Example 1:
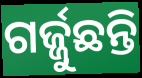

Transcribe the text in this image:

ଗର୍ଜ୍ଜୁଛନ୍ତି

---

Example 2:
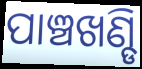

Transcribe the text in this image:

ପାଞ୍ଚଖଣ୍ଡି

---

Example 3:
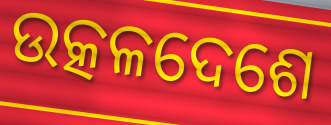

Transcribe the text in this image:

ଉତ୍କଳଦେଶେ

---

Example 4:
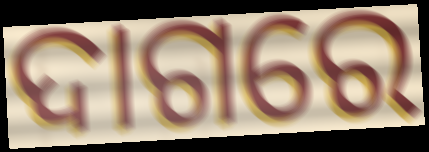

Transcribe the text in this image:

ଦାଗରେ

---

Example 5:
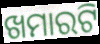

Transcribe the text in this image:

ଖମାରଟି